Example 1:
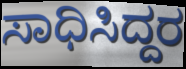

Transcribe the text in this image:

ಸಾಧಿಸಿದ್ದರ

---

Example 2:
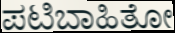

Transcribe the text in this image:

ಪಟಿಬಾಹಿತೋ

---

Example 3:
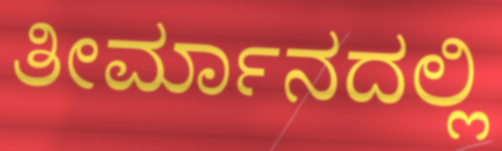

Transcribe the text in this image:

ತೀರ್ಮಾನದಲ್ಲಿ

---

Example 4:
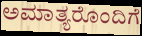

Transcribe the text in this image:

ಅಮಾತ್ಯರೊಂದಿಗೆ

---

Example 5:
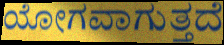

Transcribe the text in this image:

ಯೋಗವಾಗುತ್ತದೆ